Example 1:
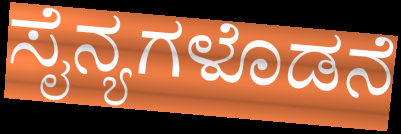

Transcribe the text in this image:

ಸೈನ್ಯಗಳೊಡನೆ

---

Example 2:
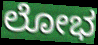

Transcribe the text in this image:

ಲೋಭ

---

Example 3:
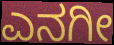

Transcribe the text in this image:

ಎನಗೀ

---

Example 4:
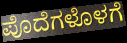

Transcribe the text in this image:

ಪೊದೆಗಳೊಳಗೆ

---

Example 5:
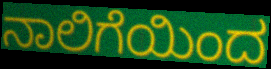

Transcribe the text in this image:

ನಾಲಿಗೆಯಿಂದ